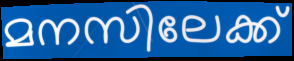
മനസിലേക്ക്